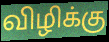
விழிக்கு